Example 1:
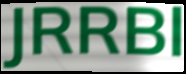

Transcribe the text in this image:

JRRBl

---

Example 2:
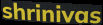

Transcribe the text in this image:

shrinivas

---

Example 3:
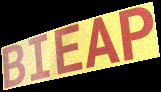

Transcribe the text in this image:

BIEAP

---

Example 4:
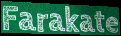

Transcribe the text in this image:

Farakate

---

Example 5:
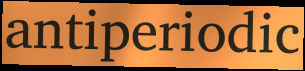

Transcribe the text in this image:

antiperiodic